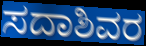
ಸದಾಶಿವರ